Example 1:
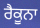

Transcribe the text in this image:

ਰੈਕੂਨਾ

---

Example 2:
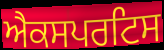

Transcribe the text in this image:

ਐਕਸਪਰਟਿਸ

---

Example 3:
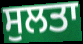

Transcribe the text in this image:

ਸੁਲਤਾ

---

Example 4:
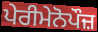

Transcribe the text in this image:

ਪੇਰੀਮੇਨੋਪੌਜ਼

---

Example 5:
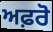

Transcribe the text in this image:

ਅਫ਼ਰੋ